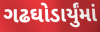
ગઢઘોડાર્યુંમાં